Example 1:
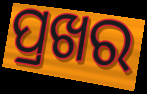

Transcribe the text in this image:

ପ୍ରଖର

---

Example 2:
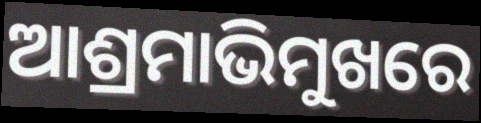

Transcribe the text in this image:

ଆଶ୍ରମାଭିମୁଖରେ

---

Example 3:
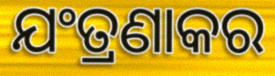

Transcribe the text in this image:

ଯଂତ୍ରଣାକର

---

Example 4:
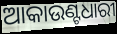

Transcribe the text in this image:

ଆକାଉଣ୍ଟଧାରୀ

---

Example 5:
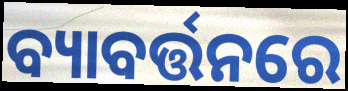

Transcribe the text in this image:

ବ୍ୟାବର୍ତ୍ତନରେ